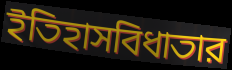
ইতিহাসবিধাতার